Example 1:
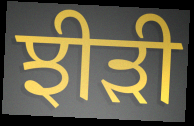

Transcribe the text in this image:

ਝੀੜੀ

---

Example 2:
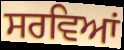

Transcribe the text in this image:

ਸਰਵਿਆਂ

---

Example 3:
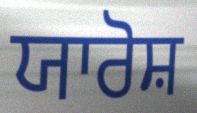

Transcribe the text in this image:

ਯਾਰੋਸ਼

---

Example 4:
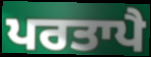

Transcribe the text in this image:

ਪਰਤਾਪੈ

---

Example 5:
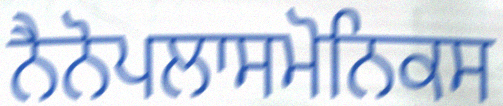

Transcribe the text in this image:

ਨੈਨੋਪਲਾਸਮੋਨਿਕਸ